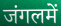
जंगलमें